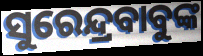
ସୁରେନ୍ଦ୍ରବାବୁଙ୍କ